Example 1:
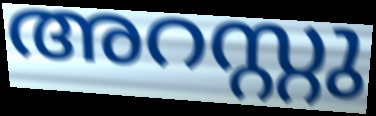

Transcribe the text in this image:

അറസ്റ്റു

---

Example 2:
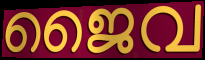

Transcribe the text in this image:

ജൈവ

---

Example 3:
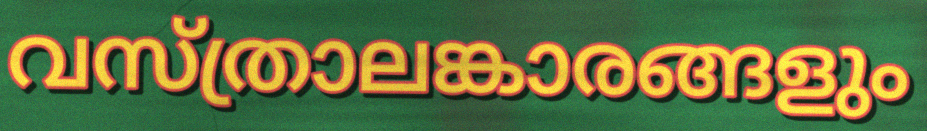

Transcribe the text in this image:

വസ്ത്രാലങ്കാരങ്ങളും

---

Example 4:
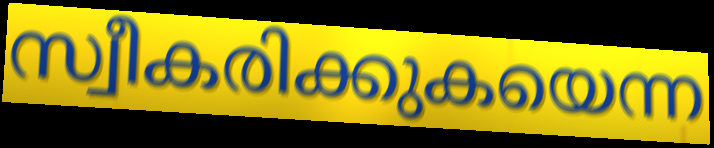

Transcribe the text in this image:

സ്വീകരിക്കുകയെന്ന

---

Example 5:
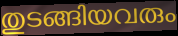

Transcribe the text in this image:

തുടങ്ങിയവരും